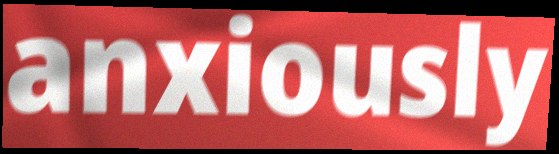
anxiously